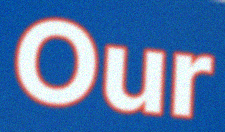
Our